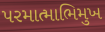
પરમાત્માભિમુખ